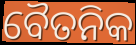
ବୈତନିକ